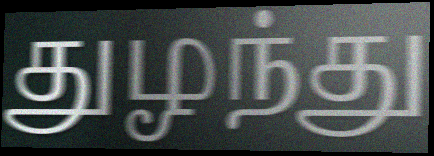
துழந்து